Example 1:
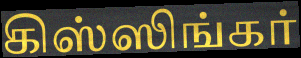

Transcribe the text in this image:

கிஸ்ஸிங்கர்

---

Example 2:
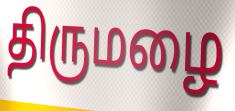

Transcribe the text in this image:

திருமழை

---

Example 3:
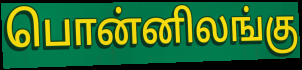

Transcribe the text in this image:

பொன்னிலங்கு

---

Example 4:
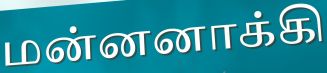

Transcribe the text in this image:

மன்னனாக்கி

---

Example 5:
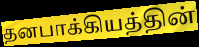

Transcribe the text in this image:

தனபாக்கியத்தின்